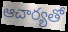
ఆచార్యతో